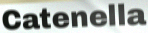
Catenella